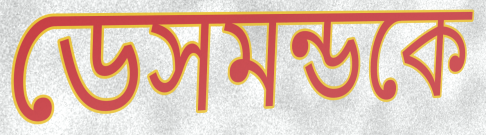
ডেসমন্ডকে